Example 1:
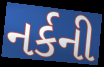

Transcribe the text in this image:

નર્કની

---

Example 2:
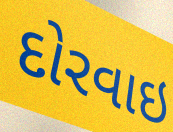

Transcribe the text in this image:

દોરવાઇ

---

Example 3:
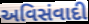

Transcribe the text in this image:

અવિસંવાદી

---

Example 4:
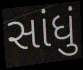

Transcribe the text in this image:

સાંધું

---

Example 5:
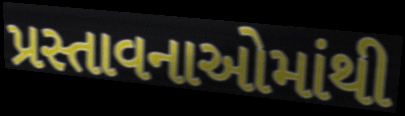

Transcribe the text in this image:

પ્રસ્તાવનાઓમાંથી